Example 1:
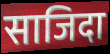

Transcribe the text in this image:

साजिदा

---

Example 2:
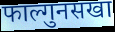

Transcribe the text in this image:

फाल्गुनसखा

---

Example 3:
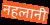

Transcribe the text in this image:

नहलानी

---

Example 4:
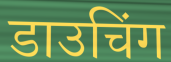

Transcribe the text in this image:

डाउचिंग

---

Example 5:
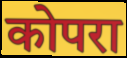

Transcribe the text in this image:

कोपरा